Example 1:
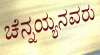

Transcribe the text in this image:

ಚೆನ್ನಯ್ಯನವರು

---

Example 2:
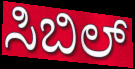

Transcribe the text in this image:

ಸಿಬಿಲ್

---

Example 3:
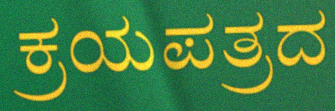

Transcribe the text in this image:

ಕ್ರಯಪತ್ರದ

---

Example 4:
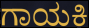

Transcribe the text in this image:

ಗಾಯಕಿ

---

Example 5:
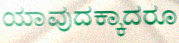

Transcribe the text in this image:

ಯಾವುದಕ್ಕಾದರೂ